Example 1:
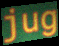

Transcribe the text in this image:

jug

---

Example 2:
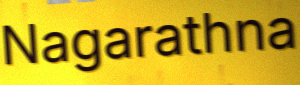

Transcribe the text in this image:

Nagarathna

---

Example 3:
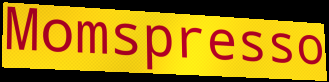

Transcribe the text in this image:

Momspresso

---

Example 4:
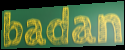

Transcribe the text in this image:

badan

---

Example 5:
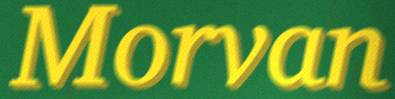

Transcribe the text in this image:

Morvan